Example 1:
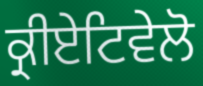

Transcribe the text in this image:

ਕ੍ਰੀਏਟਿਵੇਲੋ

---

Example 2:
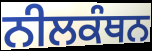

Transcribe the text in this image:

ਨੀਲਕੰਥਨ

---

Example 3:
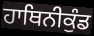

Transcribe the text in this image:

ਹਾਥਿਨੀਕੁੰਡ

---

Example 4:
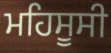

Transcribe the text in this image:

ਮਹਿਸੂਸੀ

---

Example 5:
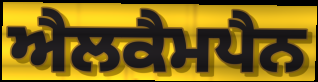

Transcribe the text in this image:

ਐਲਕੈਮਪੈਨ